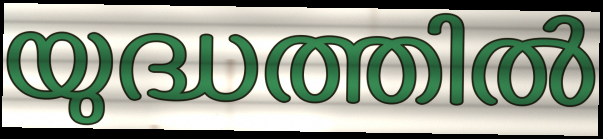
യുദ്ധത്തിൽ